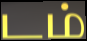
டம்